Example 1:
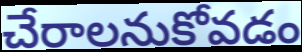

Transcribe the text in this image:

చేరాలనుకోవడం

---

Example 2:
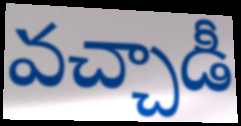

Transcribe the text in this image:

వచ్చాడీ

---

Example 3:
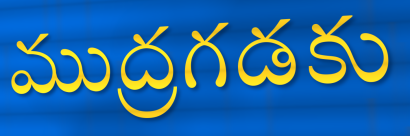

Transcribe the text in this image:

ముద్రగడకు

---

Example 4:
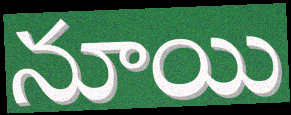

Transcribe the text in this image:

నూయి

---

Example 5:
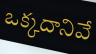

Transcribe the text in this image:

ఒక్కదానివే